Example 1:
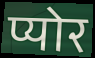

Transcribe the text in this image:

प्योर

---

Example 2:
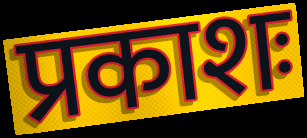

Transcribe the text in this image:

प्रकाशः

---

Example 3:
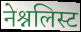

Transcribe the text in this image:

नेश्नलिस्ट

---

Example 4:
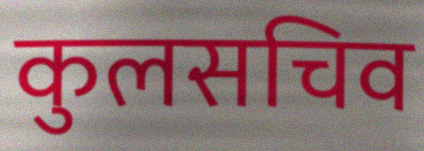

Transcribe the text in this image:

कुलसचिव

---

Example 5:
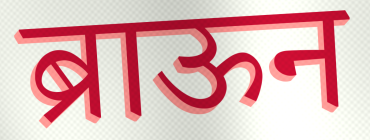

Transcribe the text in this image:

ब्राऊन